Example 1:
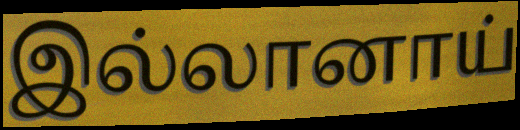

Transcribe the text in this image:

இல்லானாய்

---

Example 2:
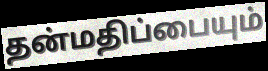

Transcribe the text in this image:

தன்மதிப்பையும்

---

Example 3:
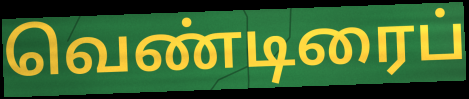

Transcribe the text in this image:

வெண்டிரைப்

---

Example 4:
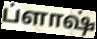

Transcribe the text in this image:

ப்ளாஷ்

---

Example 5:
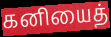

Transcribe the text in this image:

கனியைத்